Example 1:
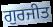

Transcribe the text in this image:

ਗੁਰਜੀਤ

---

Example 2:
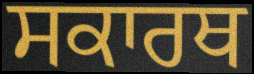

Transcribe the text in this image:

ਸਕਾਰਥ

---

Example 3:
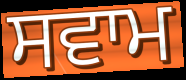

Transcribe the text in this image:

ਸਵਾਮ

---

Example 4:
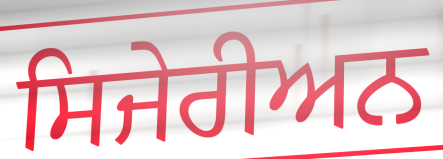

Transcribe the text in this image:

ਸਿਜੇਰੀਅਨ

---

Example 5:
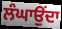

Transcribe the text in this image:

ਲੰਘਾਉਂਦਾ